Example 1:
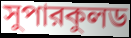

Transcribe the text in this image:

সুপারকুলড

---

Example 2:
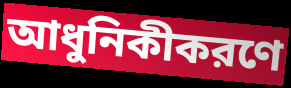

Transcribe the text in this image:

আধুনিকীকরণে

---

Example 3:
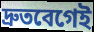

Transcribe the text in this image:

দ্রুতবেগেই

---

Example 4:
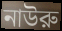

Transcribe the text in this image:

নাউরু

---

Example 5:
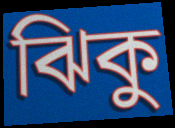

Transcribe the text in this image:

ঝিকু